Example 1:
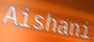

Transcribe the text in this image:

Aishani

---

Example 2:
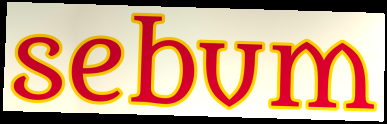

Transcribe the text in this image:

sebum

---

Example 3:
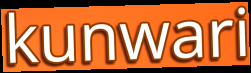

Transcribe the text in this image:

kunwari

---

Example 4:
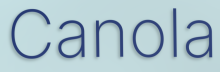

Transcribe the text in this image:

Canola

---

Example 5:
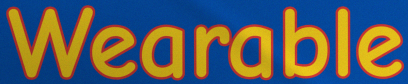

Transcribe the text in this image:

Wearable